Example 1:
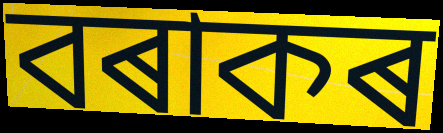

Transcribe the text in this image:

বৰাকৰ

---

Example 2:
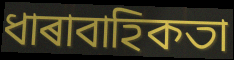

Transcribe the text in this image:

ধাৰাবাহিকতা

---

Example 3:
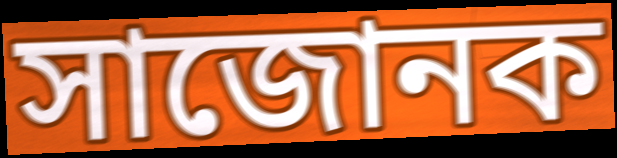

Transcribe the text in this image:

সাজোনক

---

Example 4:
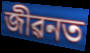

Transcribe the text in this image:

জীৱনত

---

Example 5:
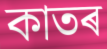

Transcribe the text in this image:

কাতৰ